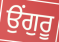
ਉਂਗੁਰੂ